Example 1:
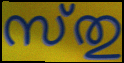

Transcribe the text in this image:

സ്‌തു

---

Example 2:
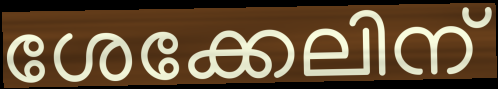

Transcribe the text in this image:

ശേക്കേലിന്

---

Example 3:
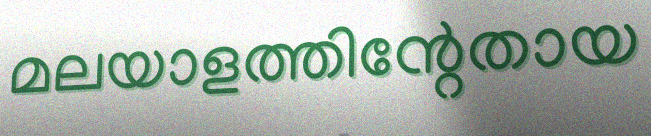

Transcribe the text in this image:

മലയാളത്തിന്റേതായ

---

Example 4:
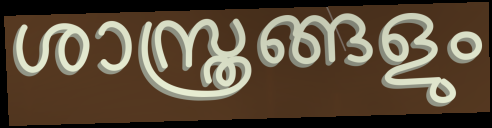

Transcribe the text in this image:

ശാസ്ത്രങ്ങളും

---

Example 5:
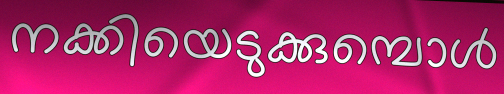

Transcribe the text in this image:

നക്കിയെടുക്കുമ്പൊൾ